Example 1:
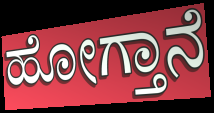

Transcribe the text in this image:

ಹೋಗ್ತಾನೆ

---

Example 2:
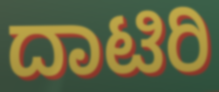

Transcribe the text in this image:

ದಾಟಿರಿ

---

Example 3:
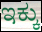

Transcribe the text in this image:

ಇಕ್ಕು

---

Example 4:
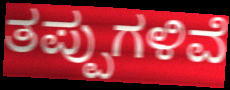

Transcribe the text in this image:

ತಪ್ಪುಗಳಿವೆ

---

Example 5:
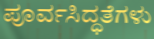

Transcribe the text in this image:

ಪೂರ್ವಸಿದ್ಧತೆಗಳು